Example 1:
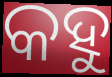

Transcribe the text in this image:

କହୁ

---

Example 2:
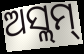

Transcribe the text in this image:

ଅସ୍ଲମ୍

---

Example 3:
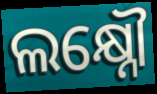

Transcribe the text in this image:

ଲକ୍ଷ୍ନୌ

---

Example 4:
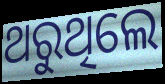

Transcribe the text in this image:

ଥରୁଥିଲେ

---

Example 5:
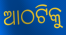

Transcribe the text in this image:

ଆଠଟିକୁ